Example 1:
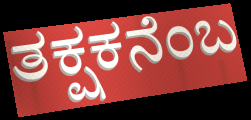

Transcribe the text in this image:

ತಕ್ಷಕನೆಂಬ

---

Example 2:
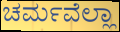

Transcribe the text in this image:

ಚರ್ಮವೆಲ್ಲಾ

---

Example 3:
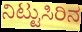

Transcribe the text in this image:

ನಿಟ್ಟುಸಿರಿನ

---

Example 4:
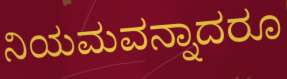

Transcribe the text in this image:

ನಿಯಮವನ್ನಾದರೂ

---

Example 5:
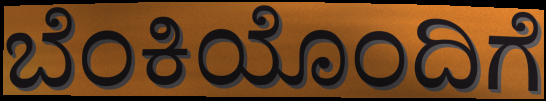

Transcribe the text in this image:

ಬೆಂಕಿಯೊಂದಿಗೆ